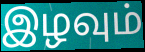
இழவும்